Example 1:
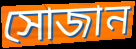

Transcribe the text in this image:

সোজান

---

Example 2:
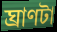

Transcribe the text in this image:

ঘ্রাণটা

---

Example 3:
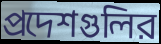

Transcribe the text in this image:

প্রদেশগুলির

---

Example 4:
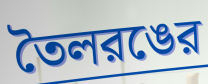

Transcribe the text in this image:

তৈলরঙের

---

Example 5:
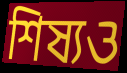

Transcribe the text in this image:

শিষ্যও